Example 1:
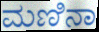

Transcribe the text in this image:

ಮಣಿನಾ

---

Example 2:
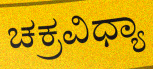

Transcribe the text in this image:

ಚಕ್ರವಿಧ್ಯಾ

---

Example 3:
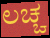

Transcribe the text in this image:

ಲಚ್ಚ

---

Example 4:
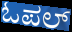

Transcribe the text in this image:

ಓಪಲ್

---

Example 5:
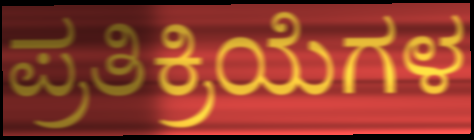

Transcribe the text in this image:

ಪ್ರತಿಕ್ರಿಯೆಗಳ